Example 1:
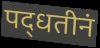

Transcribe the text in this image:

पद्धतीनं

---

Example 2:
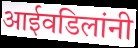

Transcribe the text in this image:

आईवडिलांनी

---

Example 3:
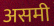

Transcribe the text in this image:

असमी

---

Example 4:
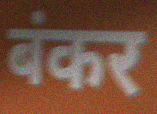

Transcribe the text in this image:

बंकर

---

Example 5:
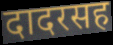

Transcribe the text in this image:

दादरसह